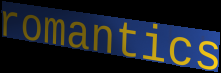
romantics